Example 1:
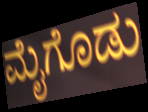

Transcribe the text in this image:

ಮೈಗೊಡು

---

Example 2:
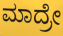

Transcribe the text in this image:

ಮಾದ್ರೇ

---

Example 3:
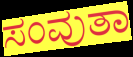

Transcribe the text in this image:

ಸಂವುತಾ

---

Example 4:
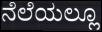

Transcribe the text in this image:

ನೆಲೆಯಲ್ಲೂ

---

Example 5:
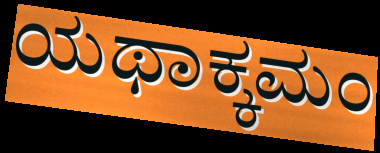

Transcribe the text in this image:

ಯಥಾಕ್ಕಮಂ